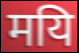
मयि